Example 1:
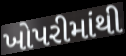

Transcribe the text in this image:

ખોપરીમાંથી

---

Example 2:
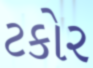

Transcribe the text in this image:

ટકોર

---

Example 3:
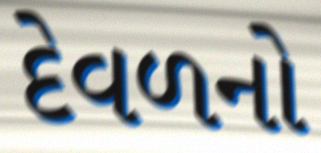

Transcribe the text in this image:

દેવળનો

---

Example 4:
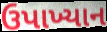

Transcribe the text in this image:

ઉપાખ્યાન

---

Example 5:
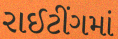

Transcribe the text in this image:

રાઈટીંગમાં